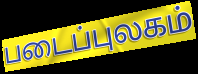
படைப்புலகம்